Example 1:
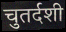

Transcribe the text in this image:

चुतर्दशी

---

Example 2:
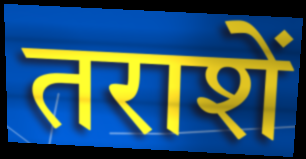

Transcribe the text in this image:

तराशें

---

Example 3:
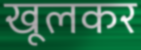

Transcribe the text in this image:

खूलकर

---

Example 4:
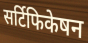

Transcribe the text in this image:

सर्टिफिकेषन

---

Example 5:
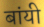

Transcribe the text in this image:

बांयी